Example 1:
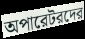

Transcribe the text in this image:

অপারেটরদের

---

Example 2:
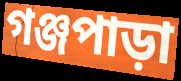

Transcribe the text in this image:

গঞ্জপাড়া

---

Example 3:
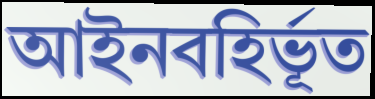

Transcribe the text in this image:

আইনবহির্ভূত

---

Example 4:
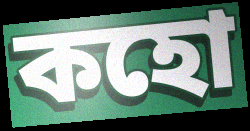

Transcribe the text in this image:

কহো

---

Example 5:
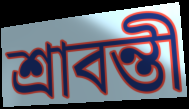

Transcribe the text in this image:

শ্রাবন্তী